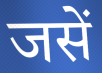
जसें